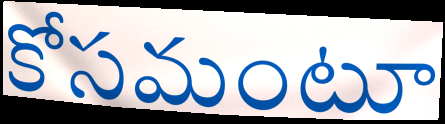
కోసమంటూ